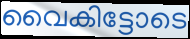
വൈകിട്ടോടെ